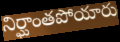
నిర్ఘాంతపోయారు